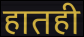
हातही